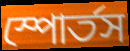
স্পোর্তস